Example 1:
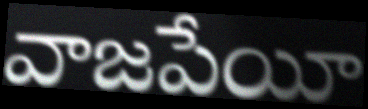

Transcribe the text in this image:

వాజపేయీ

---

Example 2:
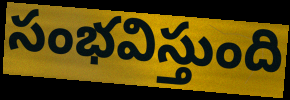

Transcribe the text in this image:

సంభవిస్తుంది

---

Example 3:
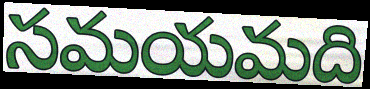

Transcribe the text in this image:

సమయమది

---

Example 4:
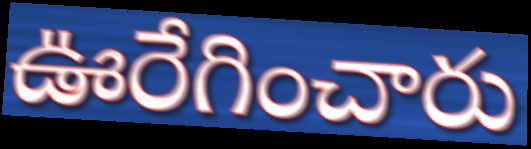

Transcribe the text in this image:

ఊరేగించారు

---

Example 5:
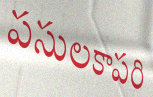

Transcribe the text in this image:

పసులకాపరి